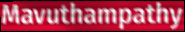
Mavuthampathy